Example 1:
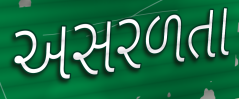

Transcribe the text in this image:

અસરળતા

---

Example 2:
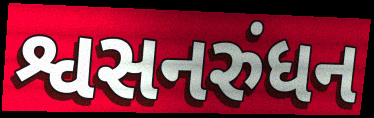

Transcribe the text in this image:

શ્વસનરુંધન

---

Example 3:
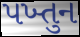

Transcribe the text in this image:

પખ્તુન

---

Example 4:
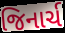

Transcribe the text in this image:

જિનાર્ચ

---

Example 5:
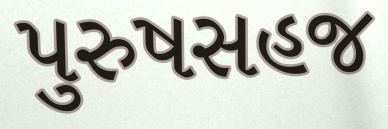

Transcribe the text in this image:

પુરુષસહજ